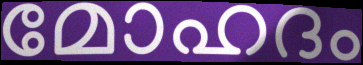
മോഹദം